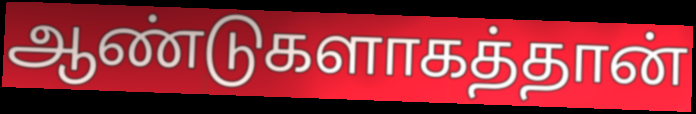
ஆண்டுகளாகத்தான்